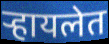
ऱ्हायलेत